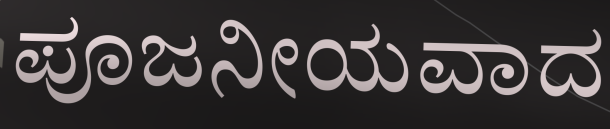
ಪೂಜನೀಯವಾದ